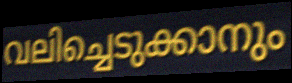
വലിച്ചെടുക്കാനും